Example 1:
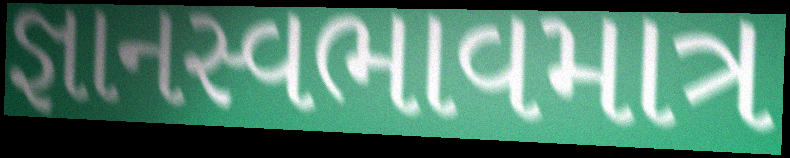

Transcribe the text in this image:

જ્ઞાનસ્વભાવમાત્ર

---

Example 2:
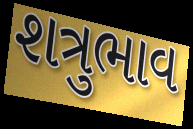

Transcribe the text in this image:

શત્રુભાવ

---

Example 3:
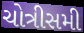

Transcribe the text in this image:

ચોત્રીસમી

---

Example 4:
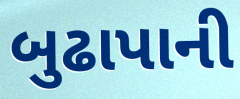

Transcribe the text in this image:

બુઢાપાની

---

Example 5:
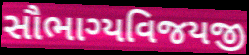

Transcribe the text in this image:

સૌભાગ્યવિજયજી